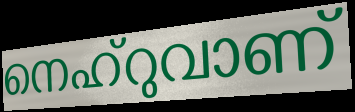
നെഹ്റുവാണ്